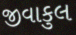
જીવાકુલ